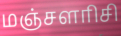
மஞ்சளரிசி